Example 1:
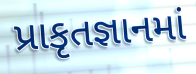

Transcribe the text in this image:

પ્રાકૃતજ્ઞાનમાં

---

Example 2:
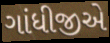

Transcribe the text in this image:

ગાંધીજીએ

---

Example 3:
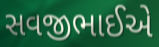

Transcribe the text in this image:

સવજીભાઈએ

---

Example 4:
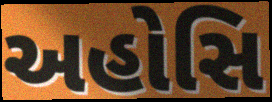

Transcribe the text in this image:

અહોસિ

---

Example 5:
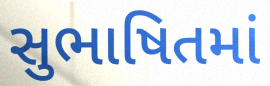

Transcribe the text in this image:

સુભાષિતમાં